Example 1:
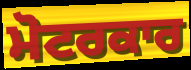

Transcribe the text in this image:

ਮੋਟਰਕਾਰ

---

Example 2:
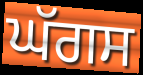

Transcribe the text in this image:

ਘੱਗਸ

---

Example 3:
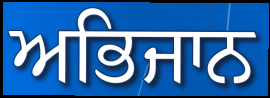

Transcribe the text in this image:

ਅਭਿਜਾਨ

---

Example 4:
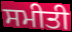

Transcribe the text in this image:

ਸਮੀਤੀ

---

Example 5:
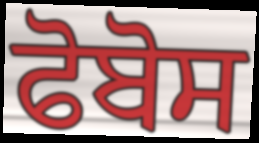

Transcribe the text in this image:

ਫੋਬੋਸ